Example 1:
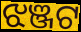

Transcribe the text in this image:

ଝଞ୍ଜଟ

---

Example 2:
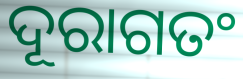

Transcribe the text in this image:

ଦୂରାଗତଂ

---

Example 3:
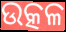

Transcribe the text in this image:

ଉତ୍କଳ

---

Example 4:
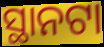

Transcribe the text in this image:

ସ୍ଥାନଟା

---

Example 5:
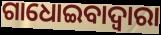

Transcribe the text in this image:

ଗାଧୋଇବାଦ୍ଵାରା